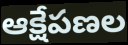
ఆక్షేపణల